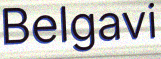
Belgavi